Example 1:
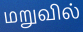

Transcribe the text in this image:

மறுவில்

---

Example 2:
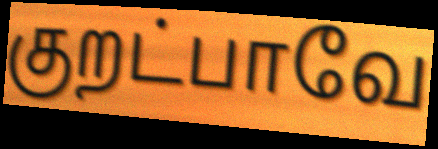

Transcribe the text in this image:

குறட்பாவே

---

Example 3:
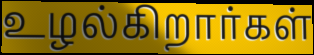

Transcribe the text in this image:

உழல்கிறார்கள்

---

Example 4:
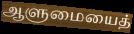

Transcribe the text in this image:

ஆளுமையைத்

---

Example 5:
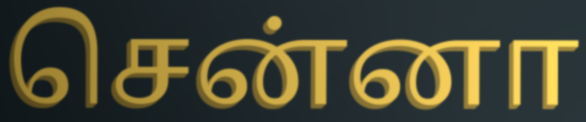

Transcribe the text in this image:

சென்னா